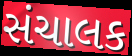
સંચાલક